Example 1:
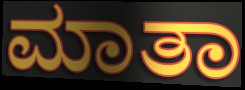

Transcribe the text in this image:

ಮಾತಾ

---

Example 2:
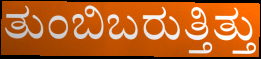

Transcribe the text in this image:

ತುಂಬಿಬರುತ್ತಿತ್ತು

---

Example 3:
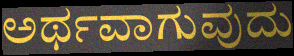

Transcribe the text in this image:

ಅರ್ಥವಾಗುವುದು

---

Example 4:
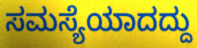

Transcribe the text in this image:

ಸಮಸ್ಯೆಯಾದದ್ದು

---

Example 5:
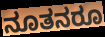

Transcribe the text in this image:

ನೂತನರೂ